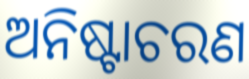
ଅନିଷ୍ଟାଚରଣ